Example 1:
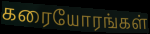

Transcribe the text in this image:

கரையோரங்கள்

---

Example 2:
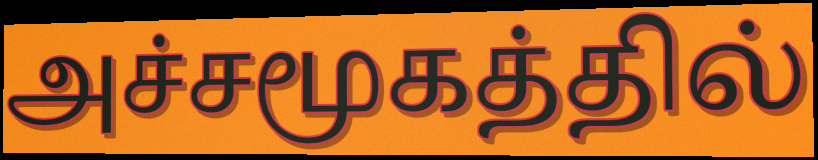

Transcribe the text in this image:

அச்சமூகத்தில்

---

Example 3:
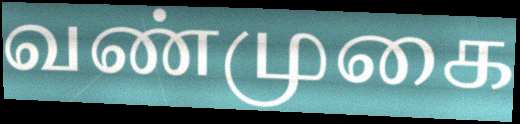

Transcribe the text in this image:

வண்முகை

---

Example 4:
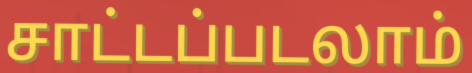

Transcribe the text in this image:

சாட்டப்படலாம்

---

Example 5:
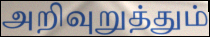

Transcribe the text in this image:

அறிவுறுத்தும்